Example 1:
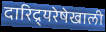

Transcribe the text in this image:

दारिद्र्यरेषेखाली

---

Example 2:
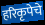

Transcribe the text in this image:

हरिकृपेचे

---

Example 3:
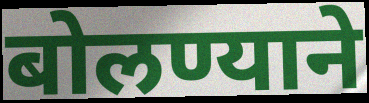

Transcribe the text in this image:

बोलण्याने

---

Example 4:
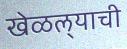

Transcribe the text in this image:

खेळल्याची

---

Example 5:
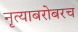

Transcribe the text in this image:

नृत्याबरोबरच